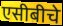
एसीबीचे